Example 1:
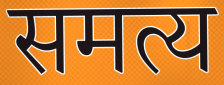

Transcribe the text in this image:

समत्य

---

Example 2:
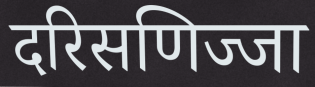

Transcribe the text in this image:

दरिसणिज्जा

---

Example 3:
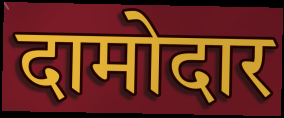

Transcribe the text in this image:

दामोदार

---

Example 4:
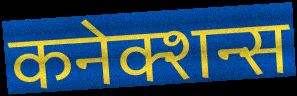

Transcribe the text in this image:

कनेक्शन्स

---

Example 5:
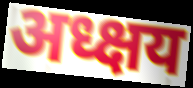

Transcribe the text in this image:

अध्क्षय